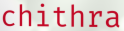
chithra